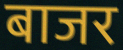
बाजर